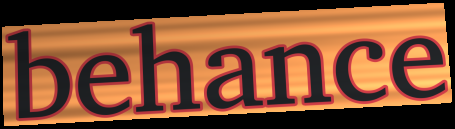
behance